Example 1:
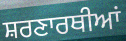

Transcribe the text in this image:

ਸ਼ਰਣਾਰਥੀਆਂ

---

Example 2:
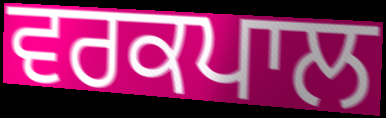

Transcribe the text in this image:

ਵਰਕਪਾਲ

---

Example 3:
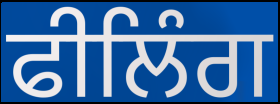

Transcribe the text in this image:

ਫੀਲਿੰਗ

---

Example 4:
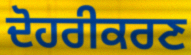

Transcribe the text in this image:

ਦੋਹਰੀਕਰਣ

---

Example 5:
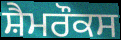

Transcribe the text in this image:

ਸ਼ੈਮਰੌਕਸ